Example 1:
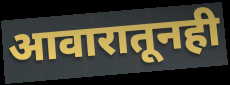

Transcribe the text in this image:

आवारातूनही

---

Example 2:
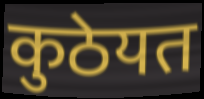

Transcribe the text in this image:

कुठेयत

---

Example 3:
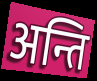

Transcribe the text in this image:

अन्ति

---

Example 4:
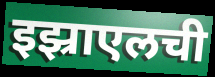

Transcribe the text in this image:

इझ्राएलची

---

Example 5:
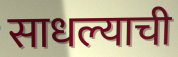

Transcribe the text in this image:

साधल्याची